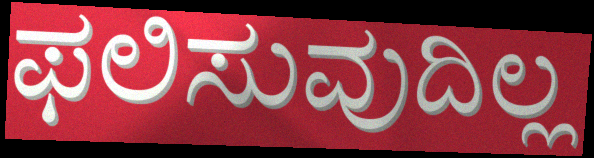
ಫಲಿಸುವುದಿಲ್ಲ